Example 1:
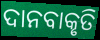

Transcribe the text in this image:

ଦାନବାକୃତି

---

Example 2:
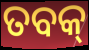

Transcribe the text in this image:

ତବକ୍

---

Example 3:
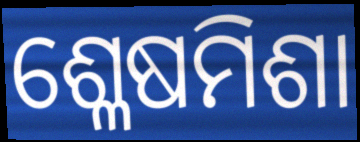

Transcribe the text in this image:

ଶ୍ଳେଷମିଶା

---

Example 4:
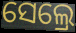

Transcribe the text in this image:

ସେଲ୍ରେ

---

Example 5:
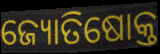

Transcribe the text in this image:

ଜ୍ୟୋତିଷୋକ୍ତ